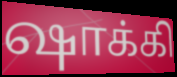
ஷாக்கி